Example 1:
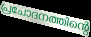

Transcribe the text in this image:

പ്രചോദനത്തിന്റെ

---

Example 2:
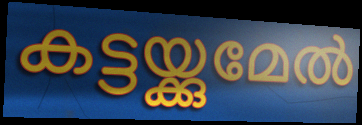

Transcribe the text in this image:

കട്ടയ്ക്കുമേൽ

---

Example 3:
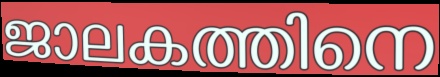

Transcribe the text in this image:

ജാലകത്തിനെ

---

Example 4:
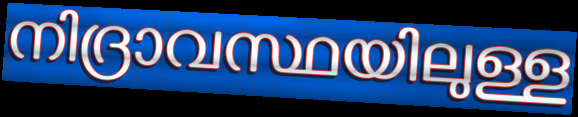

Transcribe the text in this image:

നിദ്രാവസ്ഥയിലുള്ള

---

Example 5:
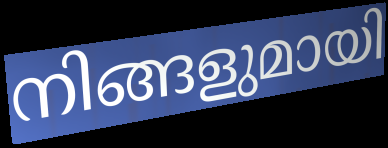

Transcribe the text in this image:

നിങ്ങളുമായി